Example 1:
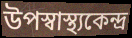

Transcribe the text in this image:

উপস্বাস্থ্যকেন্দ্র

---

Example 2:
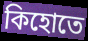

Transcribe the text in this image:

কিহোতে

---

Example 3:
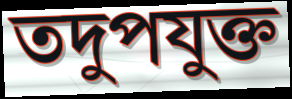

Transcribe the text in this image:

তদুপযুক্ত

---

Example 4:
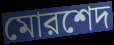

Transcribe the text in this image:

মোরশেদ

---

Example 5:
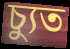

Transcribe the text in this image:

চ্যুত